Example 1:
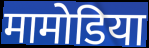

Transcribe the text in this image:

मामोडिया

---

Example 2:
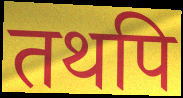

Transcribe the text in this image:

तथपि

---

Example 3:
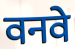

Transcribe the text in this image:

वनवे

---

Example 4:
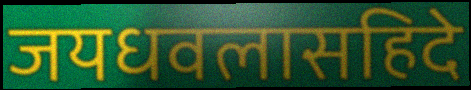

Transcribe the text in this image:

जयधवलासहिदे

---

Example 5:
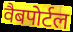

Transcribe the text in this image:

वैबपोर्टल